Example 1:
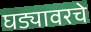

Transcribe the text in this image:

घड्यावरचे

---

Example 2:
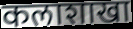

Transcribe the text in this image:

कलाशाखा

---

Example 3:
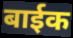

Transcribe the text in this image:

बाईक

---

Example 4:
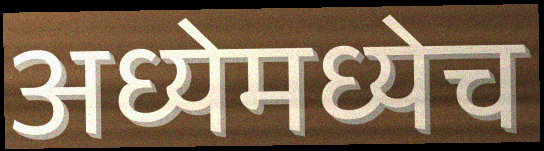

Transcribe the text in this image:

अध्येमध्येच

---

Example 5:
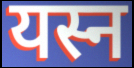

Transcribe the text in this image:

यस्न